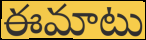
ఈమాటు